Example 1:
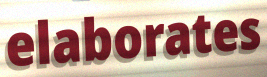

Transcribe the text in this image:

elaborates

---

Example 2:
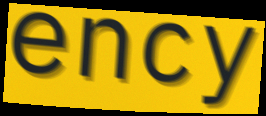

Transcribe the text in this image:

ency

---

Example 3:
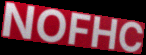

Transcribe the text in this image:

NOFHC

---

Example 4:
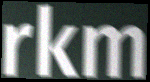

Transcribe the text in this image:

rkm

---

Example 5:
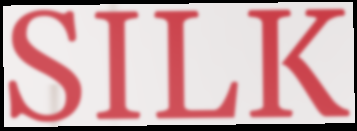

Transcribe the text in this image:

SILK